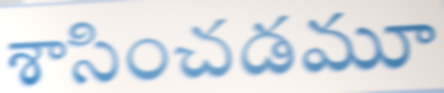
శాసించడమూ